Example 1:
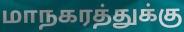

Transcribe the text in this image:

மாநகரத்துக்கு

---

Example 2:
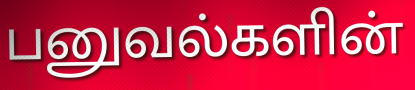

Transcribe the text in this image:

பனுவல்களின்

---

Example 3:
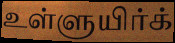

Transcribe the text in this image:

உள்ளுயிர்க்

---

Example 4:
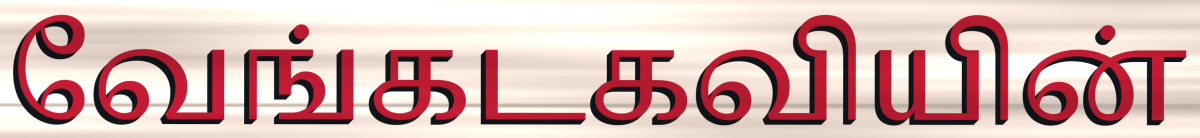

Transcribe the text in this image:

வேங்கடகவியின்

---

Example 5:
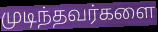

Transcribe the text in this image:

முடிந்தவர்களை